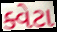
ક્વેટા